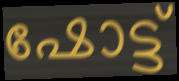
ഷോട്ട്